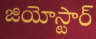
జియోస్టార్